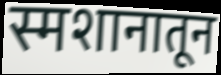
स्मशानातून